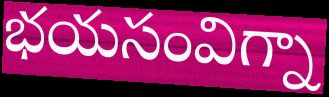
భయసంవిగ్నా